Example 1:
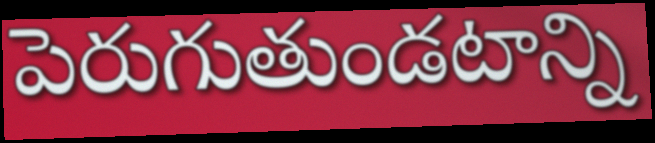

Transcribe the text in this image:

పెరుగుతుండటాన్ని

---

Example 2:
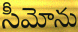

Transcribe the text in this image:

సీమోను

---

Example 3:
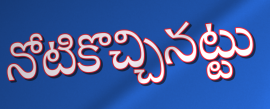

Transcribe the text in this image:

నోటికొచ్చినట్టు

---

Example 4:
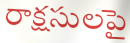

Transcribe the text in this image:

రాక్షసులపై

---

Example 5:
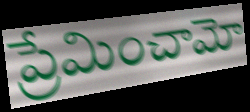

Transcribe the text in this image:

ప్రేమించామో